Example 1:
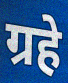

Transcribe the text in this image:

ग्रहे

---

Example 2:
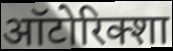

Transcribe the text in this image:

ऑटोरिक्शा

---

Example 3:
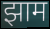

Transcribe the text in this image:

झाम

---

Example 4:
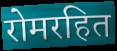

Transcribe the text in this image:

रोमरहित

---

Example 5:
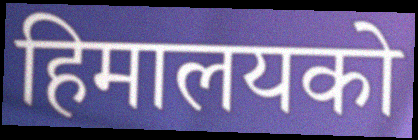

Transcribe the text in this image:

हिमालयको